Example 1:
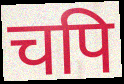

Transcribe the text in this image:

चपि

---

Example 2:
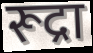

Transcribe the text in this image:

रूद्रा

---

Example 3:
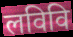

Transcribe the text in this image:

लविवि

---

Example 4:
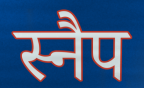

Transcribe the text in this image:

स्नैप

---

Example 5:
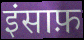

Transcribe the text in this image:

इंसाफ़